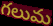
గలుమ